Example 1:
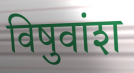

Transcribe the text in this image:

विषुवांश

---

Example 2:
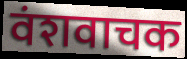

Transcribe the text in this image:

वंशवाचक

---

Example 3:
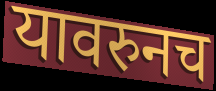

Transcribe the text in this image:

यावरुनच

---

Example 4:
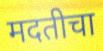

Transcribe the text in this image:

मदतीचा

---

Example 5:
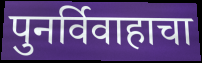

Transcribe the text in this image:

पुनर्विवाहाचा